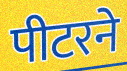
पीटरने